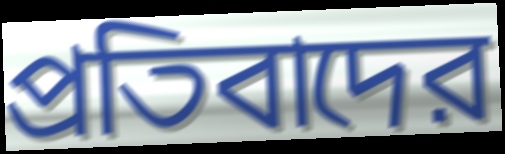
প্রতিবাদের